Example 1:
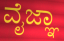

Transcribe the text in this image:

ವೈಜ್ಞಾ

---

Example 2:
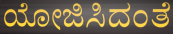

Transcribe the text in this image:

ಯೋಜಿಸಿದಂತೆ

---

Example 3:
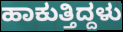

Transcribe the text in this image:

ಹಾಕುತ್ತಿದ್ದಳು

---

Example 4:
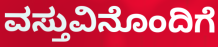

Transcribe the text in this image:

ವಸ್ತುವಿನೊಂದಿಗೆ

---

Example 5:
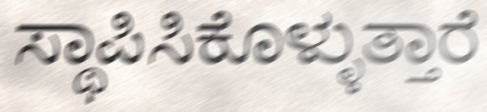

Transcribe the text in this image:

ಸ್ಥಾಪಿಸಿಕೊಳ್ಳುತ್ತಾರೆ